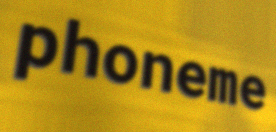
phoneme